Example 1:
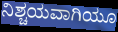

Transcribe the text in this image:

ನಿಶ್ಚಯವಾಗಿಯೂ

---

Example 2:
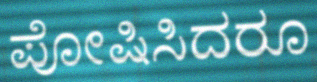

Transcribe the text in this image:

ಪೋಷಿಸಿದರೂ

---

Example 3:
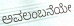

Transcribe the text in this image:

ಅವಲಂಬನೆಯೇ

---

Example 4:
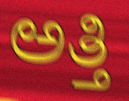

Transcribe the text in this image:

ಅತ್ತಿ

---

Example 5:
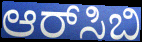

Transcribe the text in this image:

ಆರ್‌ಸಿಬಿ